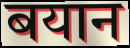
बयान